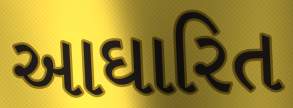
આઘારિત